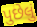
પુછેલું